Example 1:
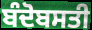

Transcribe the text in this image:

ਬੰਦੋਬਸਤੀ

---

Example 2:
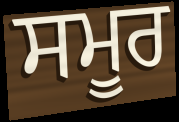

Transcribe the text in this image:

ਸਮੂਰ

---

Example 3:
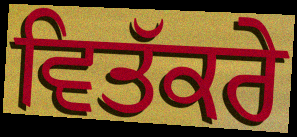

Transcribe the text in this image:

ਵਿਤੱਕਰੇ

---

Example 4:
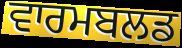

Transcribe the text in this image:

ਵਾਰਮਬਲਡ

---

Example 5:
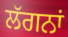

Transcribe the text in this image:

ਲੱਗਨਾਂ